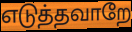
எடுத்தவாறே